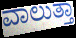
ವಾಲುತ್ತಾ